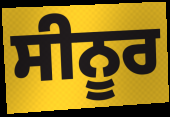
ਸੀਨੂਰ